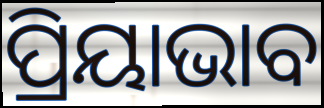
ପ୍ରିୟାଭାବ